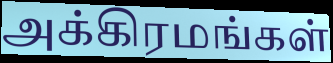
அக்கிரமங்கள்